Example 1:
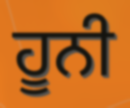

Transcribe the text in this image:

ਹੂਨੀ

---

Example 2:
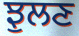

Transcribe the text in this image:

ਝੁਲਣ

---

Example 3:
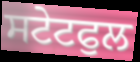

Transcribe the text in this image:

ਸਟੇਟਫੁਲ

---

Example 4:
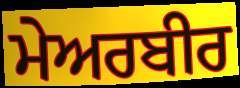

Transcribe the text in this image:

ਮੇਅਰਬੀਰ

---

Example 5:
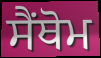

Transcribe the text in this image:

ਸੈਂਥੋਮ